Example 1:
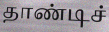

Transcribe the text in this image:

தாண்டிச்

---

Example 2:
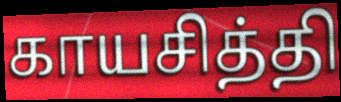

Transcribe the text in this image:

காயசித்தி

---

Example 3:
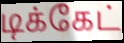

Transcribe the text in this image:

டிக்கேட்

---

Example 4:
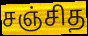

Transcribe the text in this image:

சஞ்சித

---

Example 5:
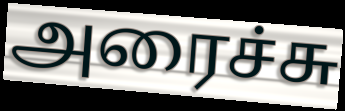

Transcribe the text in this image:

அரைச்சு